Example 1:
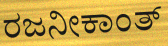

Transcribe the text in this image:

ರಜನೀಕಾಂತ್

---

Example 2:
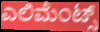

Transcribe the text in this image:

ಎಲಿಮೆಂಟ್ಸ್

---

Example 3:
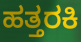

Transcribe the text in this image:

ಹತ್ತರಕಿ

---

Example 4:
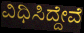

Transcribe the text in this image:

ವಿಧಿಸಿದ್ದೇವೆ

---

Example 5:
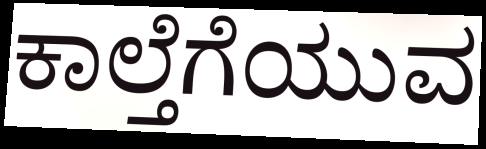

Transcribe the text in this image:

ಕಾಲ್ತೆಗೆಯುವ